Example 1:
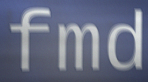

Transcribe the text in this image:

fmd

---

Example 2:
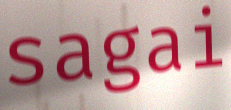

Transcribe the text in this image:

sagai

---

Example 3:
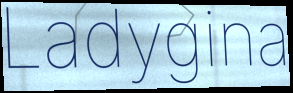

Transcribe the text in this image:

Ladygina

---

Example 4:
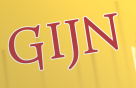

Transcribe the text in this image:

GIJN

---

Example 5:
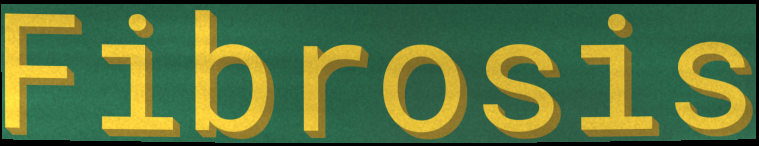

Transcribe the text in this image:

Fibrosis